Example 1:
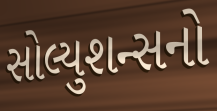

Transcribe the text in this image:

સોલ્યુશન્સનો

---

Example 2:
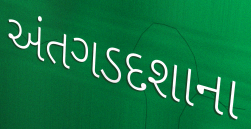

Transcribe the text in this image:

અંતગડદશાના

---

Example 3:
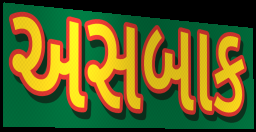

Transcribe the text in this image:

અસબાક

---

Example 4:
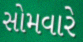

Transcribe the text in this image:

સોમવારે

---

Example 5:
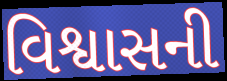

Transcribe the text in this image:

વિશ્વાસની